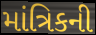
માંત્રિકની